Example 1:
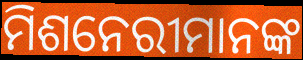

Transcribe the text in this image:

ମିଶନେରୀମାନଙ୍କ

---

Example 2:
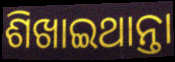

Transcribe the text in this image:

ଶିଖାଇଥାନ୍ତା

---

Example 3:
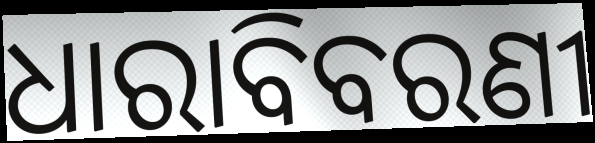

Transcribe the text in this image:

ଧାରାବିବରଣୀ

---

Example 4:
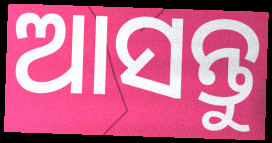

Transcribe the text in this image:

ଆସନ୍ତୁ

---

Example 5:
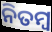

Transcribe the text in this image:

ନିତମ୍ୱ